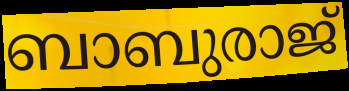
ബാബുരാജ്